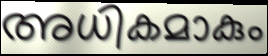
അധികമാകും